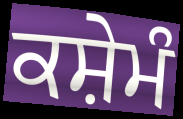
ਕਸ਼ੇਮੰ